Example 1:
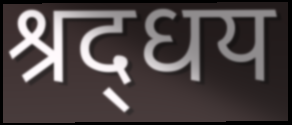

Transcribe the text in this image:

श्रद्धय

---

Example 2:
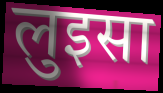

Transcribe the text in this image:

लुइसा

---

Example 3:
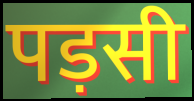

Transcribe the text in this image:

पड़सी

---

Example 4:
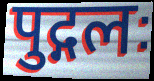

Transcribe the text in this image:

पुद्गलः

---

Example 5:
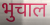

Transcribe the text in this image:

भुचाल